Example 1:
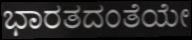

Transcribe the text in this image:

ಭಾರತದಂತೆಯೇ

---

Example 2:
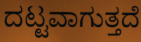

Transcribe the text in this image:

ದಟ್ಟವಾಗುತ್ತದೆ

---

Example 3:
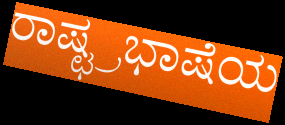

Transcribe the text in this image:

ರಾಷ್ಟ್ರಭಾಷೆಯ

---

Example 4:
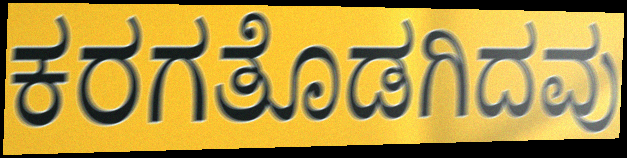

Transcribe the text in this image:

ಕರಗತೊಡಗಿದವು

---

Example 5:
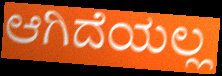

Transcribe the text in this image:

ಆಗಿದೆಯಲ್ಲ